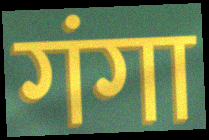
गंगा